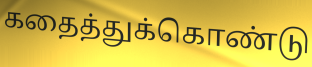
கதைத்துக்கொண்டு